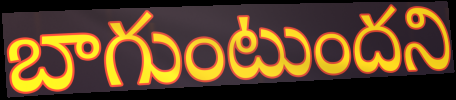
బాగుంటుందని